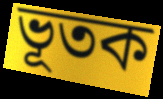
ভূতক